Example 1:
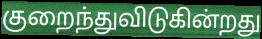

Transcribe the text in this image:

குறைந்துவிடுகின்றது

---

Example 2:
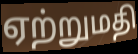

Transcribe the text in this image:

ஏற்றுமதி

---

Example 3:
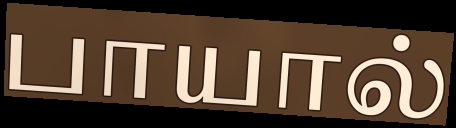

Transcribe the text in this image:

பாயால்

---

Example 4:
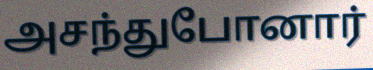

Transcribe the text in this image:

அசந்துபோனார்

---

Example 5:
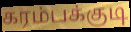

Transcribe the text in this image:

கரம்பக்குடி